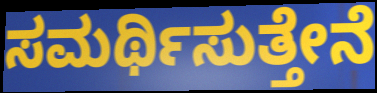
ಸಮರ್ಥಿಸುತ್ತೇನೆ